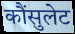
कौंसुलेट